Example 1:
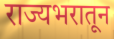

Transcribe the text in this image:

राज्यभरातून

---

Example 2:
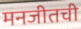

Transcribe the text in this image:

मनजीतची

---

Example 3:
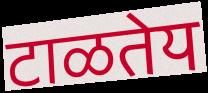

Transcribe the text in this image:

टाळतेय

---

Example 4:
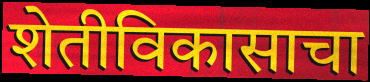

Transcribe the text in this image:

शेतीविकासाचा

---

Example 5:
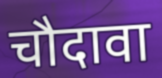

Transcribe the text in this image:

चौदावा